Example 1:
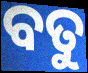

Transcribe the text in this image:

ବତୁ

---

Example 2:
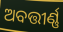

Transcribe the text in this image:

ଅବତ୍ତୀର୍ଣ୍ଣ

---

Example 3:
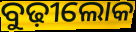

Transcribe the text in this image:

ବୁଢ଼ୀଲୋକ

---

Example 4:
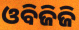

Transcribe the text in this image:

ଓବିଜିଜି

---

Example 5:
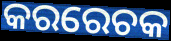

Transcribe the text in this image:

କରରେଚକ